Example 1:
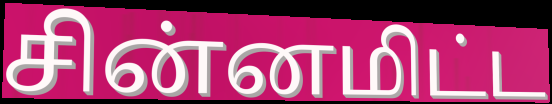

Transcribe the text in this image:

சின்னமிட்ட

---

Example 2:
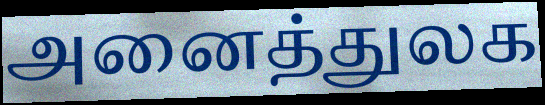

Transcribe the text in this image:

அனைத்துலக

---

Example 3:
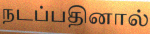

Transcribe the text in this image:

நடப்பதினால்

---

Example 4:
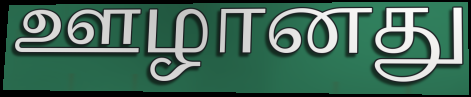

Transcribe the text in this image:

ஊழானது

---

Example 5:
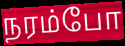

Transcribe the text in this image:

நரம்போ